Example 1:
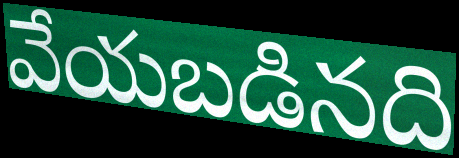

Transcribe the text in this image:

వేయబడినది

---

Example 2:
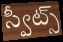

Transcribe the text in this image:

స్వీట్స్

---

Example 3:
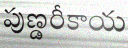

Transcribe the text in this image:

పుణ్డరీకాయ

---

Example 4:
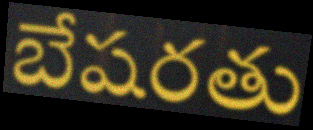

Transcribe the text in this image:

బేషరతు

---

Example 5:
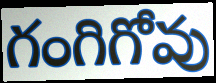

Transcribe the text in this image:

గంగిగోవు